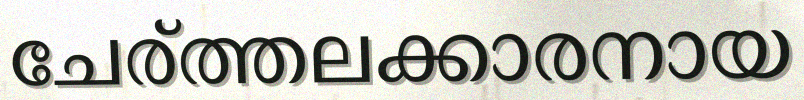
ചേര്ത്തലക്കാരനായ